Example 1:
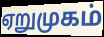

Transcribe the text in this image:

ஏறுமுகம்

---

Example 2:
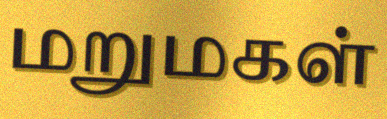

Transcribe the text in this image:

மறுமகள்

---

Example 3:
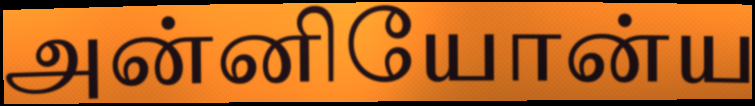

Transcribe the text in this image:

அன்னியோன்ய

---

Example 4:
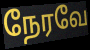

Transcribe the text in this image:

நேரவே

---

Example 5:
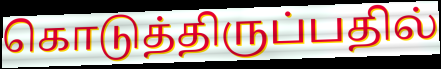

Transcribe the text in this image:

கொடுத்திருப்பதில்